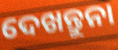
ଦେଖନ୍ତୁନା